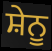
ਸ਼ੇਨੂ